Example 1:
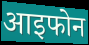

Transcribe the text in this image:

आइफोन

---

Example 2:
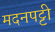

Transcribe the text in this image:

मदनपट्टी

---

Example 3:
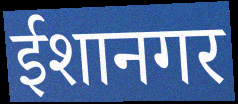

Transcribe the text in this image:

ईशानगर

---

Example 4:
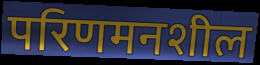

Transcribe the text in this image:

परिणमनशील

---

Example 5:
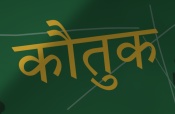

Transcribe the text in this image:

कौतुक